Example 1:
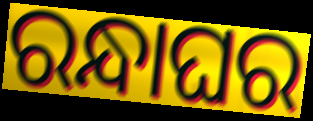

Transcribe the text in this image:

ରନ୍ଧାଘର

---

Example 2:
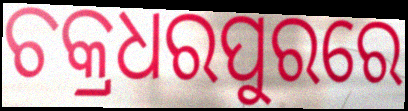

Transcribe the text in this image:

ଚକ୍ରଧରପୁରରେ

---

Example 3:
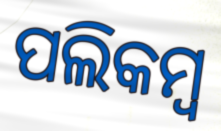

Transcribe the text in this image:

ପଲିକମ୍ବ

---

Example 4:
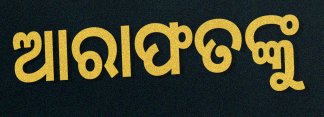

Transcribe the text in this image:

ଆରାଫତଙ୍କୁ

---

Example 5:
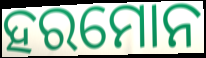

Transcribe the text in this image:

ହରମୋନ